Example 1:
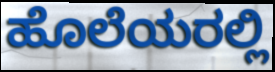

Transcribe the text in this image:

ಹೊಲೆಯರಲ್ಲಿ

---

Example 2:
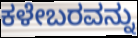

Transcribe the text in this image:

ಕಳೇಬರವನ್ನು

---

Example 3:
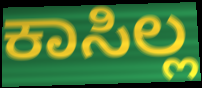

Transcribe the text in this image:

ಕಾಸಿಲ್ಲ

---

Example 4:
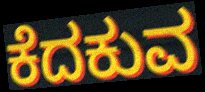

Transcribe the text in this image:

ಕೆದಕುವ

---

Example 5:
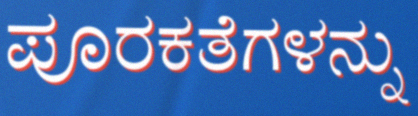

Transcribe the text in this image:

ಪೂರಕತೆಗಳನ್ನು